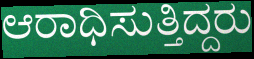
ಆರಾಧಿಸುತ್ತಿದ್ದರು